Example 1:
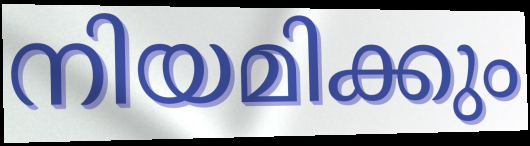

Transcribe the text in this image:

നിയമിക്കും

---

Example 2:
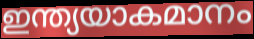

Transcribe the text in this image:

ഇന്ത്യയാകമാനം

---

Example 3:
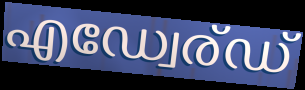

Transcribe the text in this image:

എഡ്വേര്ഡ്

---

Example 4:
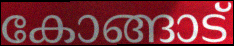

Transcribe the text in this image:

കോങ്ങാട്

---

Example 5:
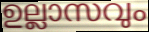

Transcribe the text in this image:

ഉല്ലാസവും